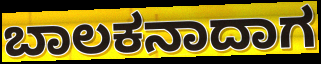
ಬಾಲಕನಾದಾಗ